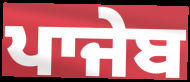
ਪਾਜੇਬ